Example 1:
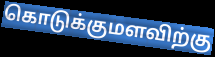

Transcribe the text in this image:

கொடுக்குமளவிற்கு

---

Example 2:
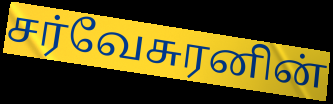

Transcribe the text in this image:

சர்வேசுரனின்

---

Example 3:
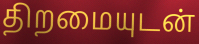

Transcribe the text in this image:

திறமையுடன்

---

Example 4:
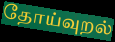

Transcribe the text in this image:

தோய்வுறல்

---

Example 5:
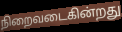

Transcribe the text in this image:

நிறைவடைகின்றது